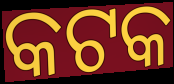
କଟକ